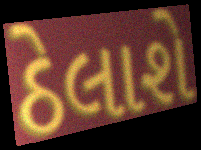
ઠેલાશે